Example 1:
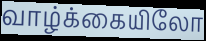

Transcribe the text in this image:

வாழ்க்கையிலோ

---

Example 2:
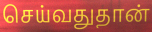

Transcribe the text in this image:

செய்வதுதான்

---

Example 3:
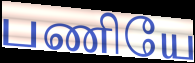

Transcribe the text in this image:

பணியே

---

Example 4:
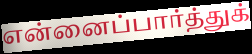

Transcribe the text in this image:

என்னைப்பார்த்துக்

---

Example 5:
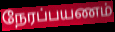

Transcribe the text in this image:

நேரப்பயணம்